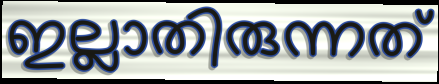
ഇല്ലാതിരുന്നത്